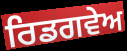
ਰਿਡਗਵੇਅ